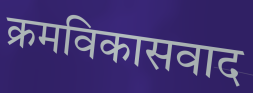
क्रमविकासवाद